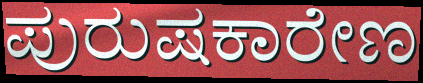
ಪುರುಷಕಾರೇಣ